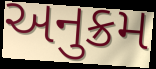
અનુક્રમ